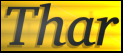
Thar